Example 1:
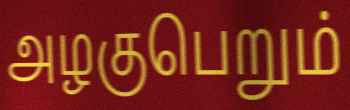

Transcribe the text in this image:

அழகுபெறும்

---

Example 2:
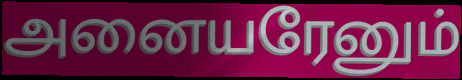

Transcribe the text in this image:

அனையரேனும்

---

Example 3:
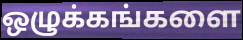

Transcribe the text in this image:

ஒழுக்கங்களை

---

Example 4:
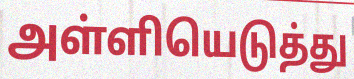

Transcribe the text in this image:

அள்ளியெடுத்து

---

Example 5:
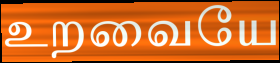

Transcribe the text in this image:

உறவையே